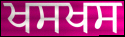
ਖਸਖਸ